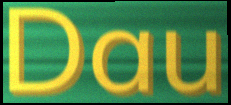
Dau